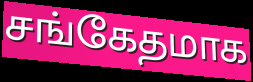
சங்கேதமாக